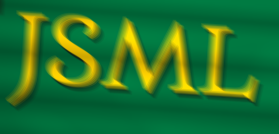
JSML